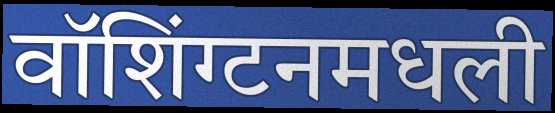
वॉशिंग्टनमधली